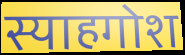
स्याहगोश